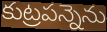
కుట్రపన్నెను